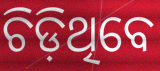
ଚିଡ଼ିଥିବେ